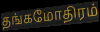
தங்கமோதிரம்